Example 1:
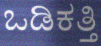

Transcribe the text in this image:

ಒಡಿಕತ್ತಿ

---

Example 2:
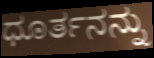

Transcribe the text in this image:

ಧೂರ್ತನನ್ನು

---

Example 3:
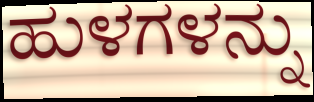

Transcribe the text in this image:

ಹುಳಗಳನ್ನು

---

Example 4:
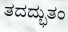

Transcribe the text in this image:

ತದದ್ಭುತಂ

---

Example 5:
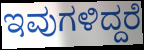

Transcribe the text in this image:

ಇವುಗಳಿದ್ದರೆ